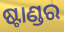
ଷ୍ଟାଣ୍ଡର